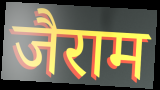
जैराम